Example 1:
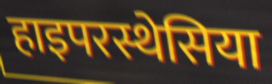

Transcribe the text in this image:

हाइपरस्थेसिया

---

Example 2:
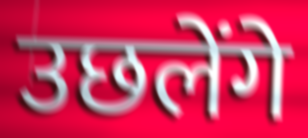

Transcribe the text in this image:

उछलेंगे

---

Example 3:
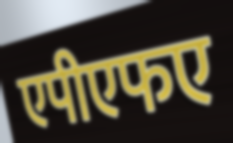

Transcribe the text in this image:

एपीएफए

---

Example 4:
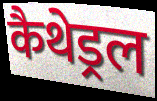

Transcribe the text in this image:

कैथेड्रल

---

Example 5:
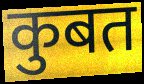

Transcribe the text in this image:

कुबत